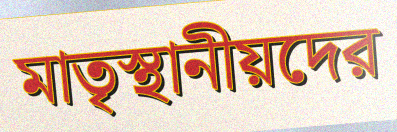
মাতৃস্থানীয়দের